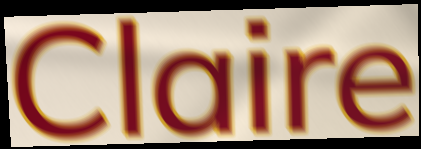
Claire